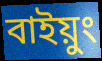
বাইয়ুং